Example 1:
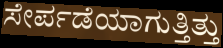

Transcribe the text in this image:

ಸೇರ್ಪಡೆಯಾಗುತ್ತಿತ್ತು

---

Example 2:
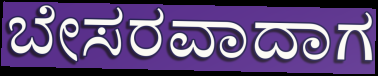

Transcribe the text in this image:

ಬೇಸರವಾದಾಗ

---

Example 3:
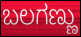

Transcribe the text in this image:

ಬಲಗಣ್ಣು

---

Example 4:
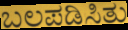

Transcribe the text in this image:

ಬಲಪಡಿಸಿತು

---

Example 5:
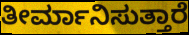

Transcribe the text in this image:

ತೀರ್ಮಾನಿಸುತ್ತಾರೆ